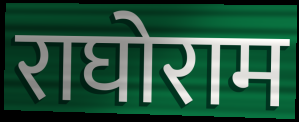
राघोराम